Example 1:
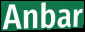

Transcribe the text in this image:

Anbar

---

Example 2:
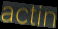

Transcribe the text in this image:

actin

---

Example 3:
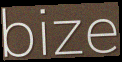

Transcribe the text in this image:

bize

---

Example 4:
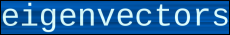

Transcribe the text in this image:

eigenvectors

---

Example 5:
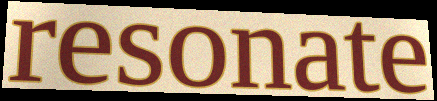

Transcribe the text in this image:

resonate